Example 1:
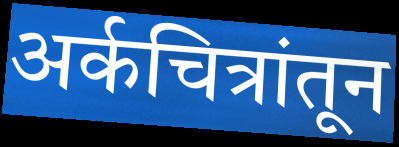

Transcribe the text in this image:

अर्कचित्रांतून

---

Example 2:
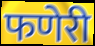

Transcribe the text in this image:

फणेरी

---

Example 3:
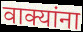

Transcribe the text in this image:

वाक्यांना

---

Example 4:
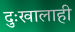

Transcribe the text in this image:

दुःखालाही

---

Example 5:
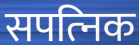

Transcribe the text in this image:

सपत्‍निक